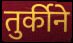
तुर्कीने